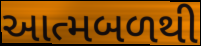
આત્મબળથી